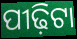
ପୀଢ଼ିଟା